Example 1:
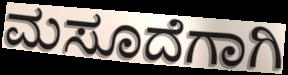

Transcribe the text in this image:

ಮಸೂದೆಗಾಗಿ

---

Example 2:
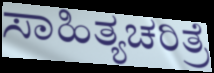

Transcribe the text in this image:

ಸಾಹಿತ್ಯಚರಿತ್ರೆ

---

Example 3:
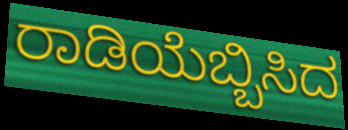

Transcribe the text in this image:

ರಾಡಿಯೆಬ್ಬಿಸಿದ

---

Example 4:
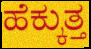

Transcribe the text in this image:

ಹೆಕ್ಕುತ್ತ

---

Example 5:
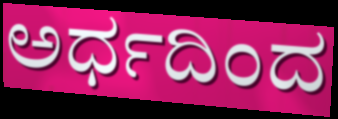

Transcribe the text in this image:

ಅರ್ಧದಿಂದ